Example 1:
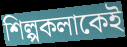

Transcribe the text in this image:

শিল্পকলাকেই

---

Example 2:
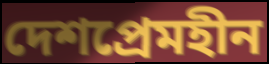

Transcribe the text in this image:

দেশপ্রেমহীন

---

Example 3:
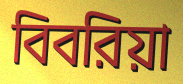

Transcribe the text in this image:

বিবরিয়া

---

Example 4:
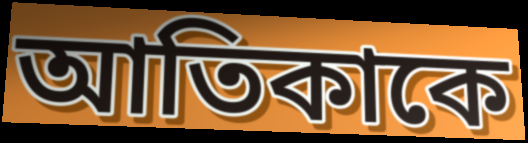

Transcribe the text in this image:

আতিকাকে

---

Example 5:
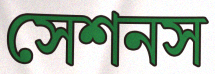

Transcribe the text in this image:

সেশনস